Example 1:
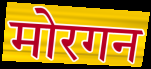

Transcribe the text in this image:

मोरगन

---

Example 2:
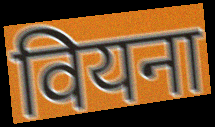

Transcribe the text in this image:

वियना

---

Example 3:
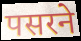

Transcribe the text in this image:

पसरने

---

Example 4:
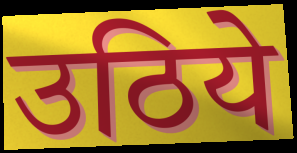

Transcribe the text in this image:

उठिये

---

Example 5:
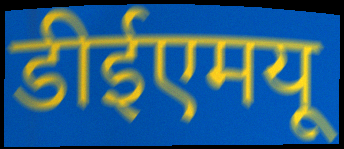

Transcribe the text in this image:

डीईएमयू